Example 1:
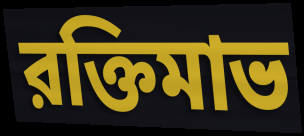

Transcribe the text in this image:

রক্তিমাভ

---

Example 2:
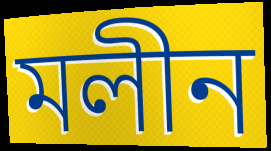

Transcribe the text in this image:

মলীন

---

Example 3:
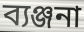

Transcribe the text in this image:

ব্যঞ্জনা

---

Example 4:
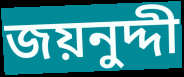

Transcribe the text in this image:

জয়নুদ্দী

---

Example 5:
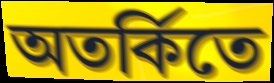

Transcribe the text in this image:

অতর্কিতে